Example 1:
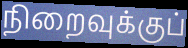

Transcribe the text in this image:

நிறைவுக்குப்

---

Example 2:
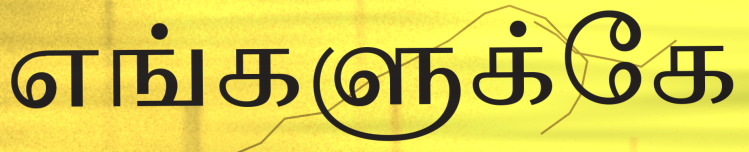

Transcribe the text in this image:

எங்களுக்கே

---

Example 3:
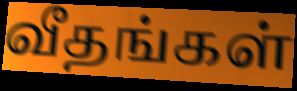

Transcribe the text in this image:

வீதங்கள்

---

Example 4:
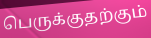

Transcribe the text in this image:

பெருக்குதற்கும்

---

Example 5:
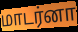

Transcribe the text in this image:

மாடர்னா